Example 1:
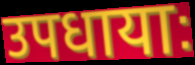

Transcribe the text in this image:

उपधायाः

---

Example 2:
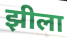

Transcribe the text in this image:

झीला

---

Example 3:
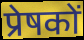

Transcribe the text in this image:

प्रेषकों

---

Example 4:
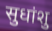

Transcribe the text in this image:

सुधांशु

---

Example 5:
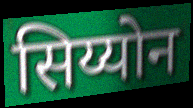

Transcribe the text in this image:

सिय्योन